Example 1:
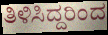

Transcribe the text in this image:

ತಿಳಿಸಿದ್ದರಿಂದ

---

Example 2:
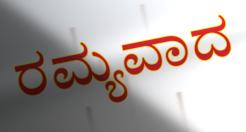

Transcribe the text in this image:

ರಮ್ಯವಾದ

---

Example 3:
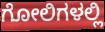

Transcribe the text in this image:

ಗೋಲಿಗಳಲ್ಲಿ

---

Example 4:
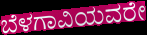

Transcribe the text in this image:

ಬೆಳಗಾವಿಯವರೇ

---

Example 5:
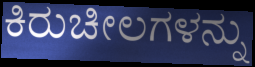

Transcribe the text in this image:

ಕಿರುಚೀಲಗಳನ್ನು